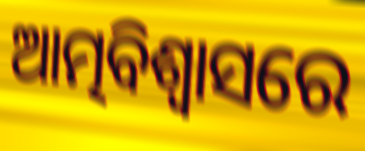
ଆତ୍ମବିଶ୍ଵାସରେ